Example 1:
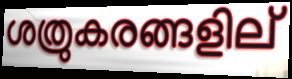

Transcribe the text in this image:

ശത്രുകരങ്ങളില്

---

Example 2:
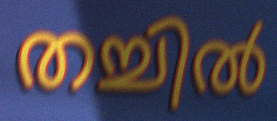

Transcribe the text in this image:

തച്ചിൽ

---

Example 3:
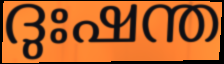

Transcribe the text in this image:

ദുഃഷന്ത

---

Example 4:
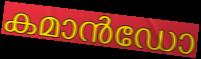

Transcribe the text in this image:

കമാൻഡോ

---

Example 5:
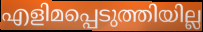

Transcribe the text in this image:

എളിമപ്പെടുത്തിയില്ല